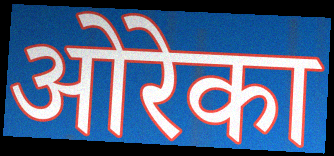
ओरेका